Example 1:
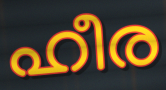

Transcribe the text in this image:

ഹീര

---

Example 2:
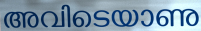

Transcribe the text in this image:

അവിടെയാണു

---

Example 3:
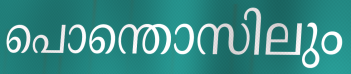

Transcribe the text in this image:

പൊന്തൊസിലും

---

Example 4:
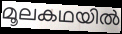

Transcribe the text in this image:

മൂലകഥയിൽ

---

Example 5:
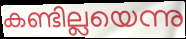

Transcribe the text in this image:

കണ്ടില്ലയെന്നു